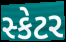
સ્કેટર